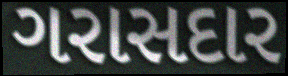
ગરાસદાર